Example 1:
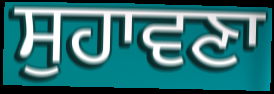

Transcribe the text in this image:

ਸੁਹਾਵਣਾ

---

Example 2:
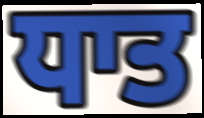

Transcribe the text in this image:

ਧਾਤ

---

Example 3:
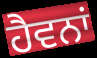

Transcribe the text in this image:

ਹੈਵਨਾਂ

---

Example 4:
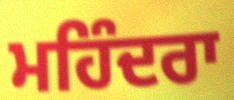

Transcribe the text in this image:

ਮਹਿੰਦਰਾ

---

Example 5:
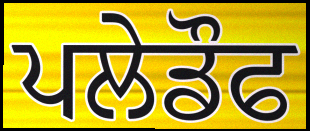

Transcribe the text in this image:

ਪਲੇਡੌਫ